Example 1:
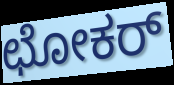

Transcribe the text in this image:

ಛೋಕರ್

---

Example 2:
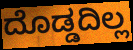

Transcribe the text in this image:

ದೊಡ್ಡದಿಲ್ಲ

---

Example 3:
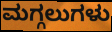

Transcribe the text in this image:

ಮಗ್ಗಲುಗಳು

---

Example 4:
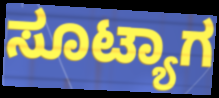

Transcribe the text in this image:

ಸೂಟ್ಯಾಗ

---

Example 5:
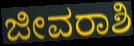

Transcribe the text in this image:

ಜೀವರಾಶಿ